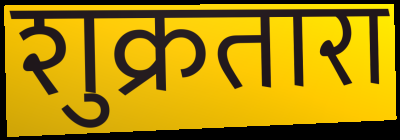
शुक्रतारा